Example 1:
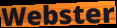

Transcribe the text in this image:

Webster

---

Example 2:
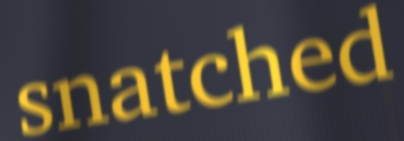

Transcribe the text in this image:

snatched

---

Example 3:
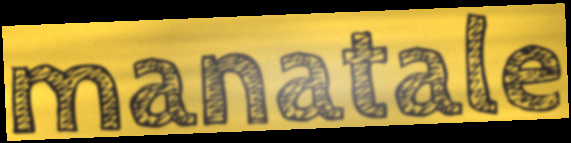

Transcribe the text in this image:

manatale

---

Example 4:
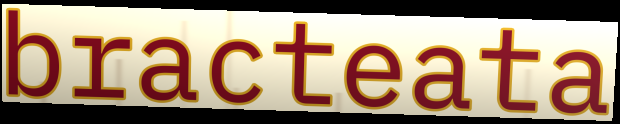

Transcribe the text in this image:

bracteata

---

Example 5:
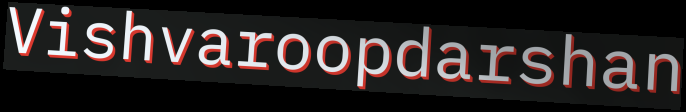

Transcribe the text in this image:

Vishvaroopdarshan